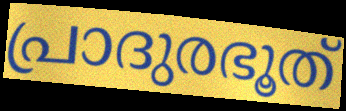
പ്രാദുരഭൂത്